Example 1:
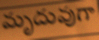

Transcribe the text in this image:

మృదువుగా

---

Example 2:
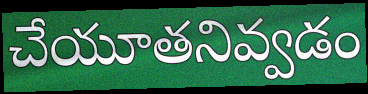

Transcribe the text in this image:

చేయూతనివ్వడం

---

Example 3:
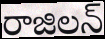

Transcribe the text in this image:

రాజిలన్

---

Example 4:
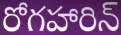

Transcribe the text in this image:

రోగహారిన్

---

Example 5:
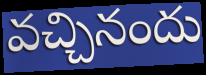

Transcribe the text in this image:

వచ్చినందు